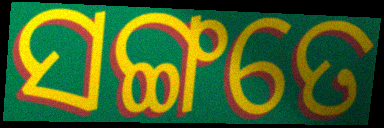
ସଙ୍ଗତେ